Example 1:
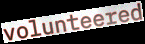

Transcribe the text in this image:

volunteered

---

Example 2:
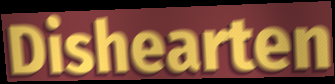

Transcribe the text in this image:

Dishearten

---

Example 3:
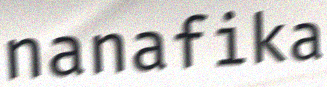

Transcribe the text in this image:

nanafika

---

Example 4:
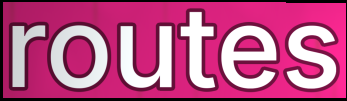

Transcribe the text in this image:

routes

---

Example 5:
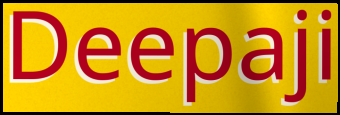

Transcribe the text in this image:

Deepaji